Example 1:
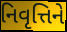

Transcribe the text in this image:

નિવૃત્તિને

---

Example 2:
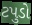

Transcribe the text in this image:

ટપુડો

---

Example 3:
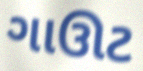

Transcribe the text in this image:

ગાઊટ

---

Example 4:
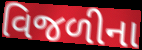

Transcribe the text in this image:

વિજળીના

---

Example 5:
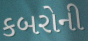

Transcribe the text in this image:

કબરોની